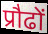
प्रौढों